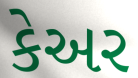
કેઅર